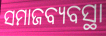
ସମାଜବ୍ୟବସ୍ଥା